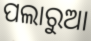
ପଲାରୁଆ